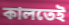
কালতেই